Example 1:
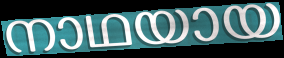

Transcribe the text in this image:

നാഥയായ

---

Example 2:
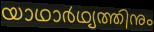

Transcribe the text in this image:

യാഥാർഥ്യത്തിനും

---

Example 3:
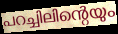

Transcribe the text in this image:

പറച്ചിലിന്റെയും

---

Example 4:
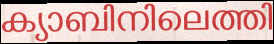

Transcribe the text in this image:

ക്യാബിനിലെത്തി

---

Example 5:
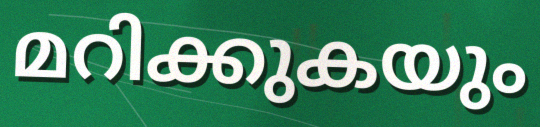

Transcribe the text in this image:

മറിക്കുകയും